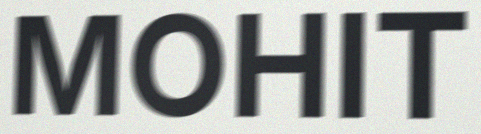
MOHIT